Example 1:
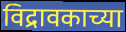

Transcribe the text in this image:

विद्रावकाच्या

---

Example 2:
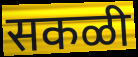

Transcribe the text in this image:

सकळी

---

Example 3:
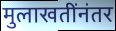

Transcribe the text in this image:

मुलाखतींनंतर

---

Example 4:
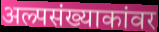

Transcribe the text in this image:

अल्पसंख्याकांवर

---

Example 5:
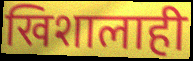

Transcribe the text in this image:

खिशालाही